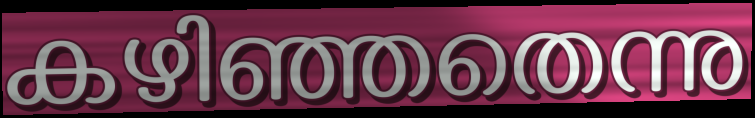
കഴിഞ്ഞതെന്നു